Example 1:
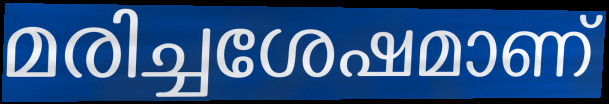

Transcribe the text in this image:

മരിച്ചശേഷമാണ്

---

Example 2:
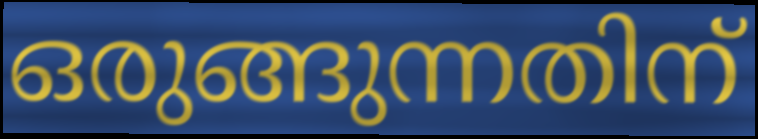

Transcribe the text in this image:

ഒരുങ്ങുന്നതിന്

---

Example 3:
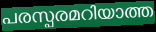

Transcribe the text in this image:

പരസ്പരമറിയാത്ത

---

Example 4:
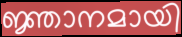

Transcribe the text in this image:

ജ്ഞാനമായി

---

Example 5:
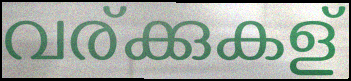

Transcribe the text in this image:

വര്ക്കുകള്